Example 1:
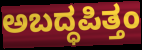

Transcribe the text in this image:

ಅಬದ್ಧಪಿತ್ತಂ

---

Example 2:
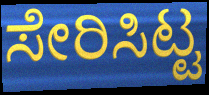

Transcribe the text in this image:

ಸೇರಿಸಿಟ್ಟ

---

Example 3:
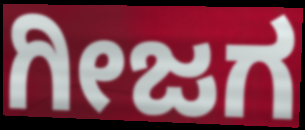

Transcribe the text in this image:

ಗೀಜಗ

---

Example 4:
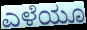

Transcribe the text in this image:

ಎಳೆಯೂ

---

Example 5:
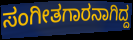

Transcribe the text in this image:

ಸಂಗೀತಗಾರನಾಗಿದ್ದ